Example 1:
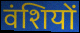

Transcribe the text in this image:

वंशियों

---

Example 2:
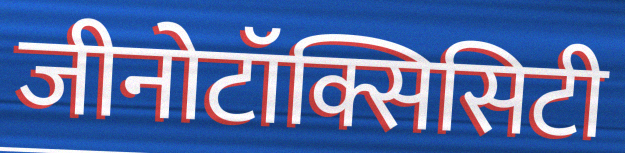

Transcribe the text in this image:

जीनोटॉक्सिसिटी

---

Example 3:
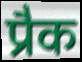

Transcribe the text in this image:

प्रैक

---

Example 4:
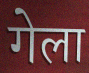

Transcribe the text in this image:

गेला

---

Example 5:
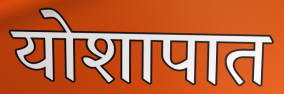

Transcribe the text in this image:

योशापात